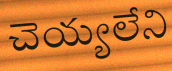
చెయ్యలేని